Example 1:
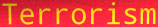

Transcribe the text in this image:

Terrorism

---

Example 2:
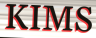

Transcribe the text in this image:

KIMS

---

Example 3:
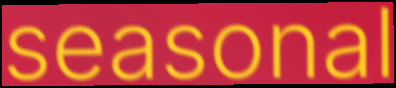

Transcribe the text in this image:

seasonal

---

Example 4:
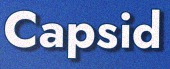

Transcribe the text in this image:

Capsid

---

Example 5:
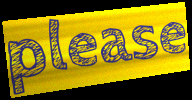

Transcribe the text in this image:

please